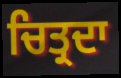
ਚਿਤ੍ਰਦਾ